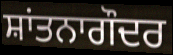
ਸ਼ਾਂਤਨਾਗੌਦਰ